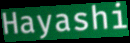
Hayashi